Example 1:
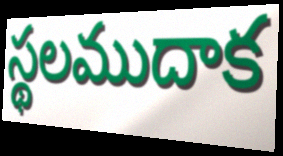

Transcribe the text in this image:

స్థలముదాక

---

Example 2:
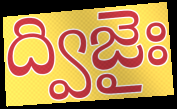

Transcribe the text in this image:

ద్విజైః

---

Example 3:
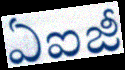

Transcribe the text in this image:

ఏఐజీ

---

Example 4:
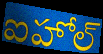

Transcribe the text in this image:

ఐహోల్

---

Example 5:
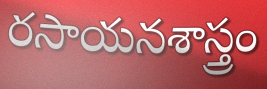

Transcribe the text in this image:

రసాయనశాస్త్రం